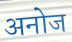
अनोज